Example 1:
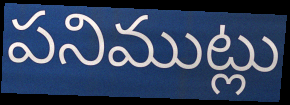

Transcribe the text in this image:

పనిముట్లు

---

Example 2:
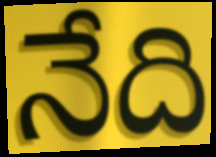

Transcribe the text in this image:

నేది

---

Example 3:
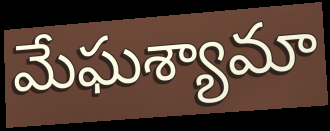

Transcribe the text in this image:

మేఘశ్యామా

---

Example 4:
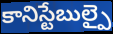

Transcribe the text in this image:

కానిస్టేబుల్పై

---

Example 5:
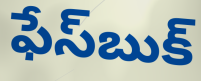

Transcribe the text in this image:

ఫేస్‌బుక్